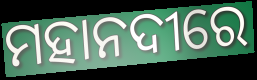
ମହାନଦୀରେ